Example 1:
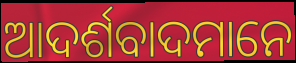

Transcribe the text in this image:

ଆଦର୍ଶବାଦମାନେ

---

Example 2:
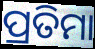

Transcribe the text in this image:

ପ୍ରତିମା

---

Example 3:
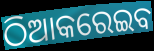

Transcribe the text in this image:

ଠିଆକରେଇବ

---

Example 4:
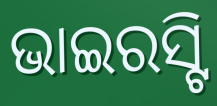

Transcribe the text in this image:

ଭାଇରସ୍ଟି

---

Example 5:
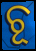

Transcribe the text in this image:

ଚୂ